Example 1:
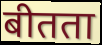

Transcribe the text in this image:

बीतता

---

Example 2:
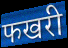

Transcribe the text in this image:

फखरी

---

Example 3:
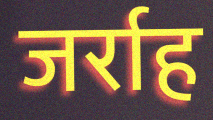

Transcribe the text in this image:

जर्राह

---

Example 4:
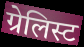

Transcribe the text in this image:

ग्रेलिस्ट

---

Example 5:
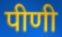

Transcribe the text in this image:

पीणी